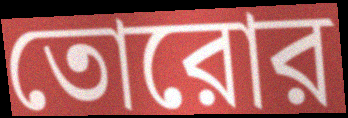
তোরোর